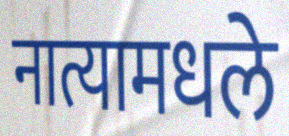
नात्यामधले